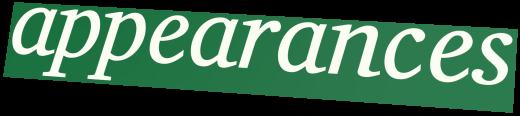
appearances